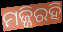
ମଜ୍ଜିରହି